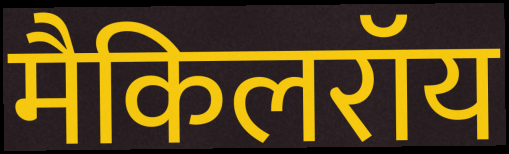
मैकिलरॉय